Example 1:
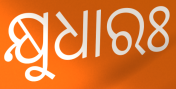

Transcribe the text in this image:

କ୍ଷୁଧାରଃ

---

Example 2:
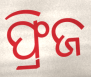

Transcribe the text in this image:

ଫ୍ରିଜ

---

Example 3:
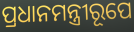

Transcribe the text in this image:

ପ୍ରଧାନମନ୍ତ୍ରୀରୂପେ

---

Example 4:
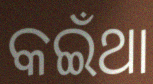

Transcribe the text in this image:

କଇଁଥା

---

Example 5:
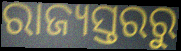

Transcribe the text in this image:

ରାଜ୍ୟସ୍ତରରୁ